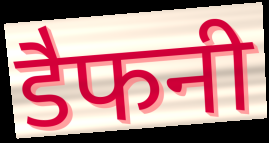
डैफनी